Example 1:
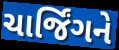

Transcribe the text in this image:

ચાર્જિંગને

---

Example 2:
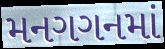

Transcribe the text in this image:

મનગગનમાં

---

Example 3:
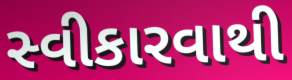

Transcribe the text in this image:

સ્વીકારવાથી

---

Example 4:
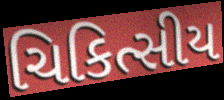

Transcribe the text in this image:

ચિકિત્સીય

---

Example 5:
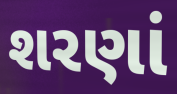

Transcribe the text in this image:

શરણાં